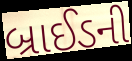
બ્રાઈડની